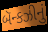
બૅન્કઝીનું